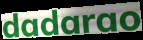
dadarao